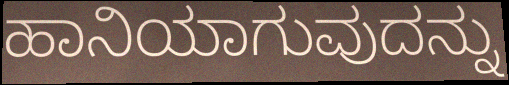
ಹಾನಿಯಾಗುವುದನ್ನು